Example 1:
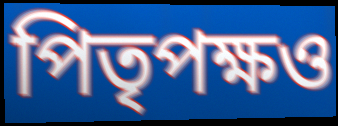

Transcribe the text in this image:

পিতৃপক্ষও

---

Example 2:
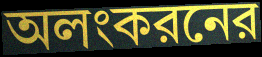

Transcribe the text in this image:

অলংকরনের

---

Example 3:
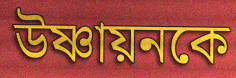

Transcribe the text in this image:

উষ্ণায়নকে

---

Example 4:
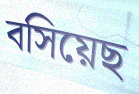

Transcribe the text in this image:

বসিয়েছ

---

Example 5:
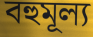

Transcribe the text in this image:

বহুমূল্য